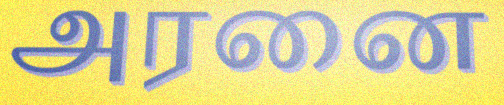
அரனை